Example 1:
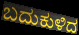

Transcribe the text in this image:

ಬದುಕುಳಿದ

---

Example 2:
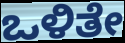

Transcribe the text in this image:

ಒಳಿತೇ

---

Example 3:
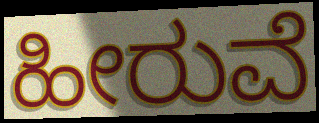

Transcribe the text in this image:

ಹೀರುವೆ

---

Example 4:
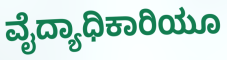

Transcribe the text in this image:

ವೈದ್ಯಾಧಿಕಾರಿಯೂ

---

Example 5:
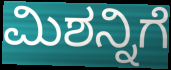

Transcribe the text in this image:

ಮಿಶನ್ನಿಗೆ